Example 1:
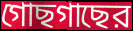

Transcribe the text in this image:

গোছগাছের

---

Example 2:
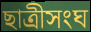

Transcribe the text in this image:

ছাত্রীসংঘ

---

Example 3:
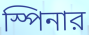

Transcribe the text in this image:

স্পিনার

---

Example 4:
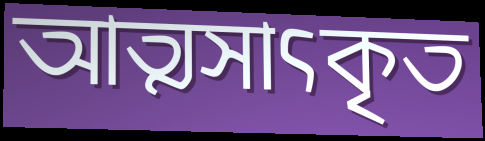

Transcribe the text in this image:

আত্মসাৎকৃত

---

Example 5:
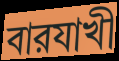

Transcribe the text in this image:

বারযাখী